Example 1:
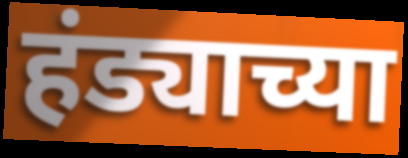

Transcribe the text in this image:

हंड्याच्या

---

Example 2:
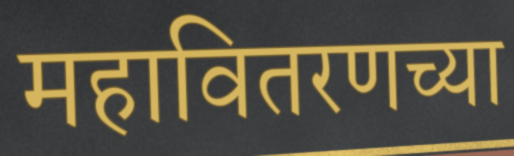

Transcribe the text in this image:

महावितरणच्या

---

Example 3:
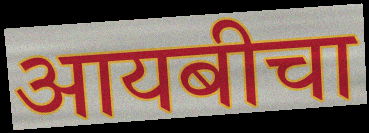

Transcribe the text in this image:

आयबीचा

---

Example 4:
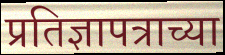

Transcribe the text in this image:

प्रतिज्ञापत्राच्या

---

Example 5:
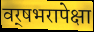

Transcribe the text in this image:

वर्षभरापेक्षा